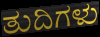
ತುದಿಗಳು